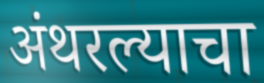
अंथरल्याचा